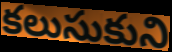
కలుసుకుని